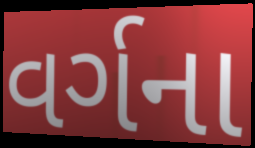
વર્ગના